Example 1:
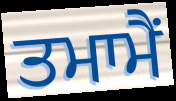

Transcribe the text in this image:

ਤਮਾਮੈਂ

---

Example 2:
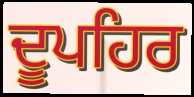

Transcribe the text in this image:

ਦੂਪਹਿਰ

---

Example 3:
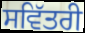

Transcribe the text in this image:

ਸਵਿੱਤਰੀ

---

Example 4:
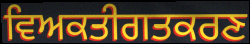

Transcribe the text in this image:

ਵਿਅਕਤੀਗਤਕਰਣ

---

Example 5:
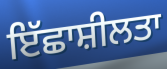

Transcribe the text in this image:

ਇੱਛਾਸ਼ੀਲਤਾ